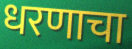
धरणाचा